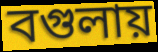
বগুলায়